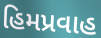
હિમપ્રવાહ